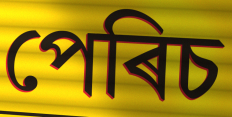
পেৰিচ